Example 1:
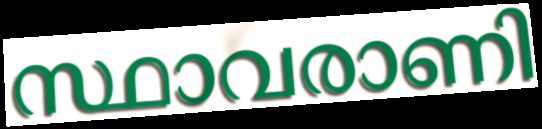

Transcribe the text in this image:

സ്ഥാവരാണി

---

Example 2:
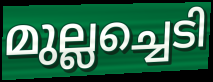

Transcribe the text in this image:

മുല്ലച്ചെടി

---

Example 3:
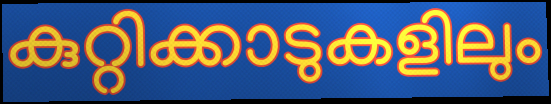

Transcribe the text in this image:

കുറ്റിക്കാടുകളിലും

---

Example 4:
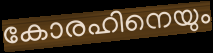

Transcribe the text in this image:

കോരഹിനെയും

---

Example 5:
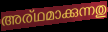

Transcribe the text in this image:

അര്ഥമാക്കുന്നതു